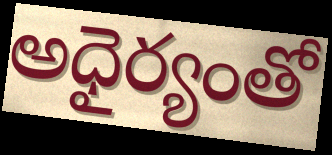
అధైర్యంతో